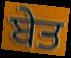
ਬੇਤ